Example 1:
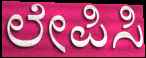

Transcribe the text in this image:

ಲೇಪಿಸಿ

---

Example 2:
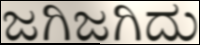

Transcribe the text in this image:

ಜಗಿಜಗಿದು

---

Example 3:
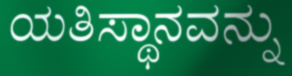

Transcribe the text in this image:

ಯತಿಸ್ಥಾನವನ್ನು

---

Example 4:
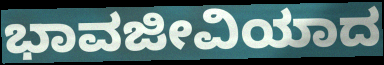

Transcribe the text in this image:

ಭಾವಜೀವಿಯಾದ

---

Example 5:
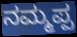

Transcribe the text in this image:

ನಮ್ಮಪ್ಪ